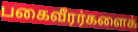
பகைவீரர்களைக்